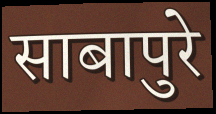
साबापुरे